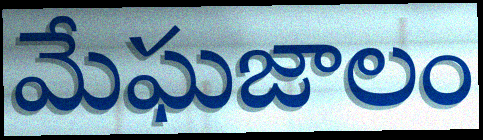
మేఘజాలం